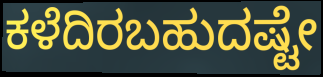
ಕಳೆದಿರಬಹುದಷ್ಟೇ